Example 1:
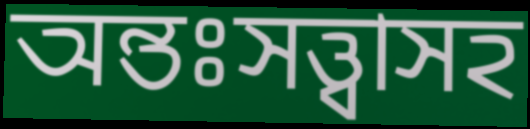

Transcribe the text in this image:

অন্তঃসত্ত্বাসহ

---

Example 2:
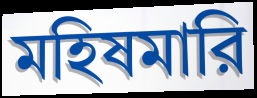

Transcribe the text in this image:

মহিষমারি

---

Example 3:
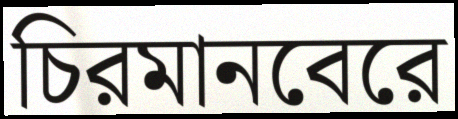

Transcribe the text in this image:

চিরমানবেরে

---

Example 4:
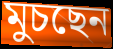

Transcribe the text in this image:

মুচছেন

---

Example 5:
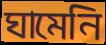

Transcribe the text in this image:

ঘামেনি